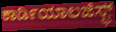
ಕಾರ್ಡಿಯಾಲಜಿಸ್ಟ್